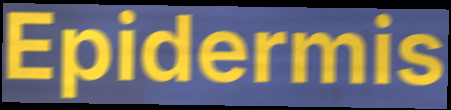
Epidermis